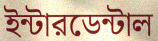
ইন্টারডেন্টাল